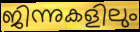
ജിന്നുകളിലും